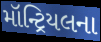
મૉન્ટ્રિયલના